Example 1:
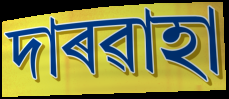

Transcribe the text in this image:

দাৰৱাহা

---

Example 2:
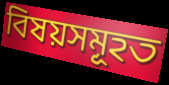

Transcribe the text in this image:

বিষয়সমূহত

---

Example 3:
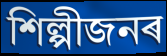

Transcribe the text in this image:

শিল্পীজনৰ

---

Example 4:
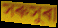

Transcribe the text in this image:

সৰুসুৰা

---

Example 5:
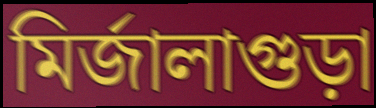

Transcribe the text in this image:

মিৰ্জালাগুড়া